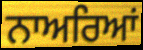
ਨਾਅਰਿਆਂ